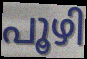
പൂഴി